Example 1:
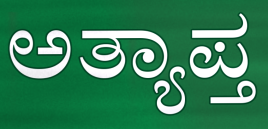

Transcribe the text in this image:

ಅತ್ಯಾಪ್ತ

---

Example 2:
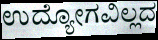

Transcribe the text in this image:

ಉದ್ಯೋಗವಿಲ್ಲದ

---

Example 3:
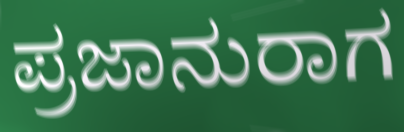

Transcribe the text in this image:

ಪ್ರಜಾನುರಾಗ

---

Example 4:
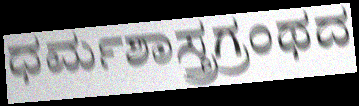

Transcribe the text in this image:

ಧರ್ಮಶಾಸ್ತ್ರಗ್ರಂಥದ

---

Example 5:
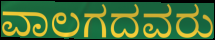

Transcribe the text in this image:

ವಾಲಗದವರು